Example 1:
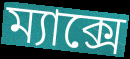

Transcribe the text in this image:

ম্যাক্সে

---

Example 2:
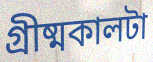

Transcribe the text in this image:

গ্রীষ্মকালটা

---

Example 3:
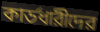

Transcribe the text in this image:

কার্ডধারীদের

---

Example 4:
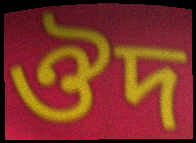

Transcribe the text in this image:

ঔদ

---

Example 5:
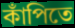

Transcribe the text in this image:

কাঁপিতে